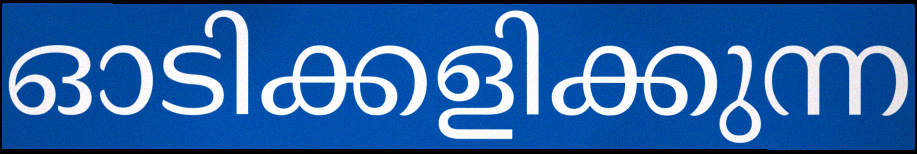
ഓടിക്കളിക്കുന്ന